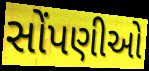
સોંપણીઓ